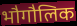
भौगौलिक